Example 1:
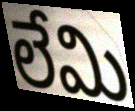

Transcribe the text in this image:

లేమి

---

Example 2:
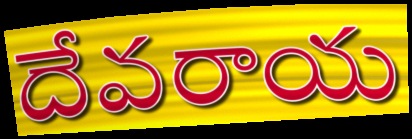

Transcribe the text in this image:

దేవరాయ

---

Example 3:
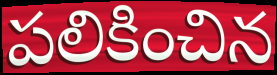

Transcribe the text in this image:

పలికించిన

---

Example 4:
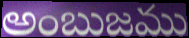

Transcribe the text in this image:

అంబుజము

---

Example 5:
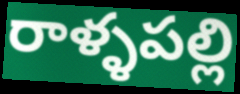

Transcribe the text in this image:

రాళ్ళపల్లి